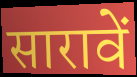
सारावें